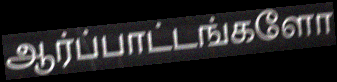
ஆர்ப்பாட்டங்களோ